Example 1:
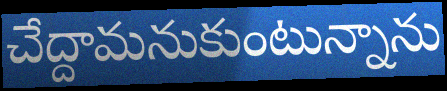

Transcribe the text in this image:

చేద్దామనుకుంటున్నాను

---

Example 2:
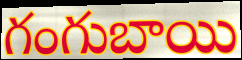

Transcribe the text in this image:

గంగుబాయి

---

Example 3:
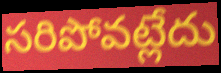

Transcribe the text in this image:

సరిపోవట్లేదు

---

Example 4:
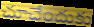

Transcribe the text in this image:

చూచేందుకు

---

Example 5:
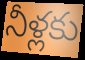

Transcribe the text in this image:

నీళ్లకు